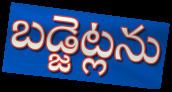
బడ్జెట్లను